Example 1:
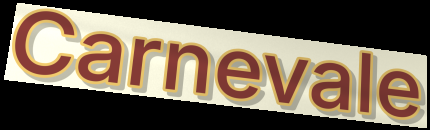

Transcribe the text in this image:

Carnevale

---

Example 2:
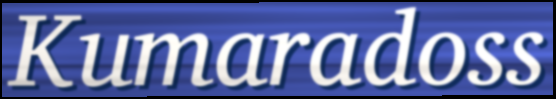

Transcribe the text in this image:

Kumaradoss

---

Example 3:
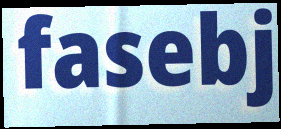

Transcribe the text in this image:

fasebj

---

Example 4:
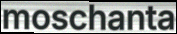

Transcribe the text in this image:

moschanta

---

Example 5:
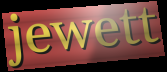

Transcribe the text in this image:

jewett